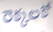
రెక్కలకో